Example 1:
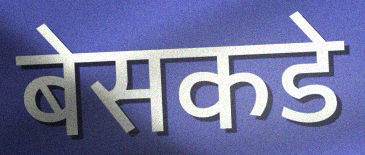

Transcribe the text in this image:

बेसकडे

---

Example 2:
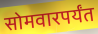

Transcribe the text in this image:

सोमवारपर्यंत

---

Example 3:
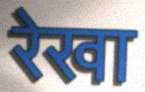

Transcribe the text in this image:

रेखा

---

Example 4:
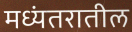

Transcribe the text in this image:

मध्यंतरातील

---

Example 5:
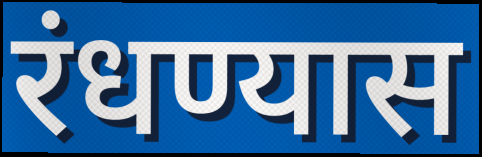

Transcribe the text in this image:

रंधण्यास